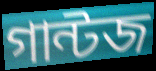
গান্টজ